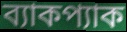
ব্যাকপ্যাক